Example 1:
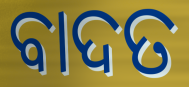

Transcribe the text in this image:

ବାଦତ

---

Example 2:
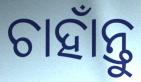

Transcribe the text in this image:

ଚାହାଁନ୍ତୁ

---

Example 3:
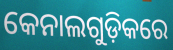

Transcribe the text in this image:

କେନାଲଗୁଡ଼ିକରେ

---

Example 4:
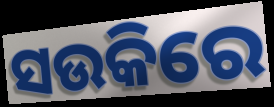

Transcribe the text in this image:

ସଉକିରେ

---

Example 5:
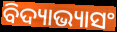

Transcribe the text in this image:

ବିଦ୍ୟାଭ୍ୟାସଂ